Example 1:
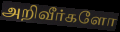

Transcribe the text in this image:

அறிவீர்களோ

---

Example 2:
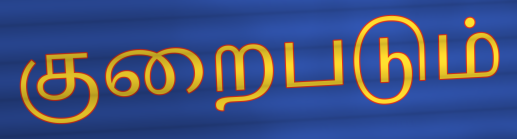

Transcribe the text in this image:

குறைபடும்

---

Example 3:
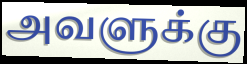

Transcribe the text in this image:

அவளுக்கு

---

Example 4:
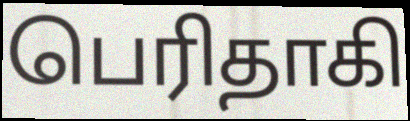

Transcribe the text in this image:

பெரிதாகி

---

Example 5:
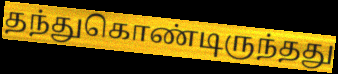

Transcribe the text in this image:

தந்துகொண்டிருந்தது